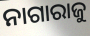
ନାଗାରାଜୁ